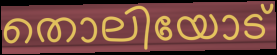
തൊലിയോട്